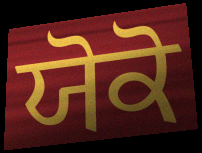
ਯੋਕੋ